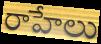
రాహేలు